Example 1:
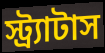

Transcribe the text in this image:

স্ট্র্যাটাস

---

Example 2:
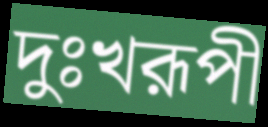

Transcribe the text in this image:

দুঃখরূপী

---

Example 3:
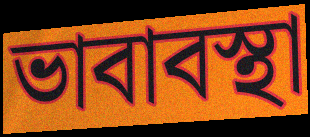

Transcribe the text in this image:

ভাবাবস্থা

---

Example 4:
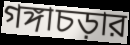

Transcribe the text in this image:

গঙ্গাচড়ার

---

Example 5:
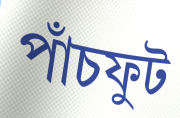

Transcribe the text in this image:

পাঁচফুট